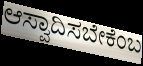
ಆಸ್ವಾದಿಸಬೇಕೆಂಬ